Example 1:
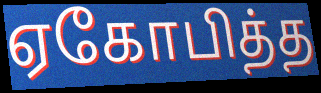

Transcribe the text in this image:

ஏகோபித்த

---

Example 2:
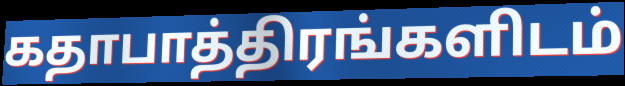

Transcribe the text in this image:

கதாபாத்திரங்களிடம்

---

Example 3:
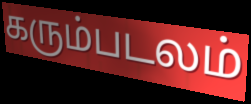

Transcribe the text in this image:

கரும்படலம்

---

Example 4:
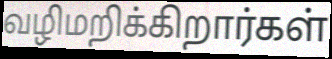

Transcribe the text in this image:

வழிமறிக்கிறார்கள்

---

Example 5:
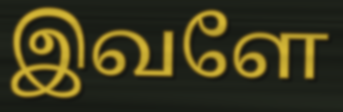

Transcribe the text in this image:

இவளே